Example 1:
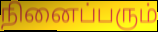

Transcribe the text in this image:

நினைப்பரும்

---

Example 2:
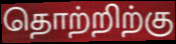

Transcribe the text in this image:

தொற்றிற்கு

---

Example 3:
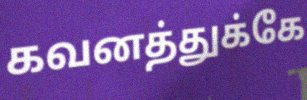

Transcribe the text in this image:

கவனத்துக்கே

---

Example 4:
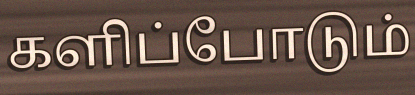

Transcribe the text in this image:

களிப்போடும்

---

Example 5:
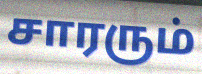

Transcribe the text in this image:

சாரரும்